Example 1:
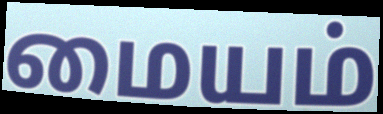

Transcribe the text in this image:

மையம்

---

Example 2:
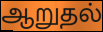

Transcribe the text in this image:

ஆறுதல்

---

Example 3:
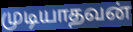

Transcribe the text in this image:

முடியாதவன்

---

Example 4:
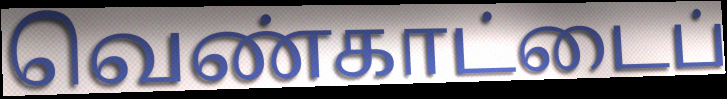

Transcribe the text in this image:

வெண்காட்டைப்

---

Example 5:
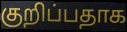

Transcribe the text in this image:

குறிப்பதாக